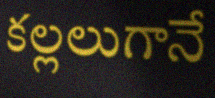
కల్లలుగానే